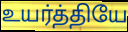
உயர்த்தியே